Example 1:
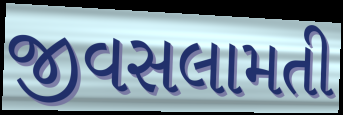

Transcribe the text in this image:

જીવસલામતી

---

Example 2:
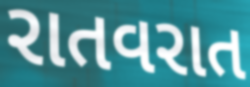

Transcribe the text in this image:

રાતવરાત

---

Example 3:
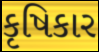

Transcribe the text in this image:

કૃષિકાર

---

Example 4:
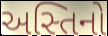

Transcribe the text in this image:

અસ્તિનો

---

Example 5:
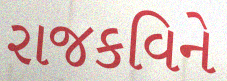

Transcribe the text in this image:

રાજકવિને